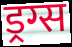
ड्रग्स